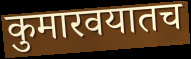
कुमारवयातच